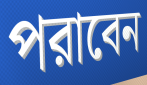
পরাবেন